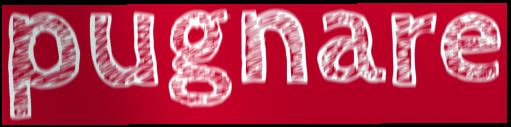
pugnare